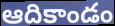
ఆదికాండం